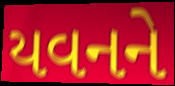
યવનને